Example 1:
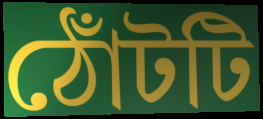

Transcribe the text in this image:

ঠোঁটটি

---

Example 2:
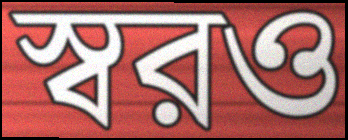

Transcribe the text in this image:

স্বরও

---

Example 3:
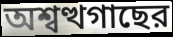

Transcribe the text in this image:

অশ্বত্থগাছের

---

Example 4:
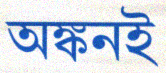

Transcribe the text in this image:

অঙ্কনই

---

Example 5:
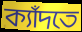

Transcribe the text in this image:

ক্যাঁদতে